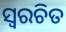
ସ୍ୱରଚିତ